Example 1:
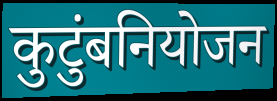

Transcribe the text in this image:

कुटुंबनियोजन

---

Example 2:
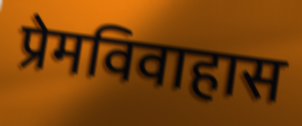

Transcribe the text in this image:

प्रेमविवाहास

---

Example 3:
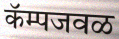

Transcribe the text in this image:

कॅम्पजवळ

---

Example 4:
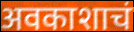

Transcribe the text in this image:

अवकाशाचं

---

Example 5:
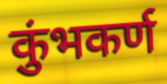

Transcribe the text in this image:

कुंभकर्ण